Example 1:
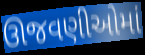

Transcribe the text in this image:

ઊજવણીઓમાં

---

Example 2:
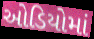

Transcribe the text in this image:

ઓડિયોમાં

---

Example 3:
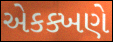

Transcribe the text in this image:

એકક્ખણે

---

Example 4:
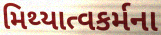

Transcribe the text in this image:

મિથ્યાત્વકર્મના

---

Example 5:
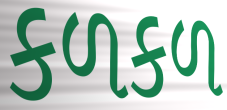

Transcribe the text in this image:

કળકળ